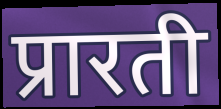
प्रारती